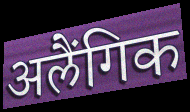
अलैंगिक